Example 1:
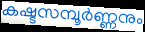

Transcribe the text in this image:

കഷ്ടസമ്പൂർണ്ണനും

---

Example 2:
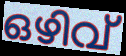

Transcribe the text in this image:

ഒഴിവ്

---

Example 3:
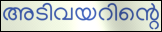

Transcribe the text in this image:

അടിവയറിന്റെ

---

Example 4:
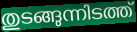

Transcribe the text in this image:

തുടങ്ങുന്നിടത്ത്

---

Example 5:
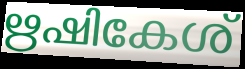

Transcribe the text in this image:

ഋഷികേശ്